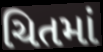
ચિતમાં